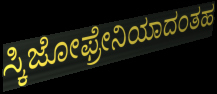
ಸ್ಕಿಜೋಫ್ರೇನಿಯಾದಂತಹ